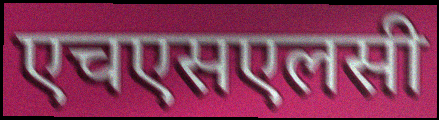
एचएसएलसी